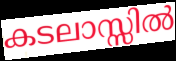
കടലാസ്സിൽ